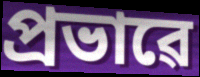
প্ৰভাৱে